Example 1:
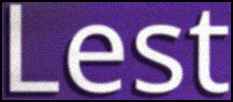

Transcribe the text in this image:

Lest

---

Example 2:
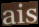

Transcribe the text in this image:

ais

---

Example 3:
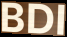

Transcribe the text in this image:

BDI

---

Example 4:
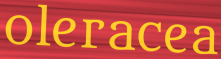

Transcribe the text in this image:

oleracea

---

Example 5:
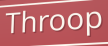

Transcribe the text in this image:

Throop